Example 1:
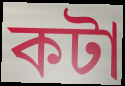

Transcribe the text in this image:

কটা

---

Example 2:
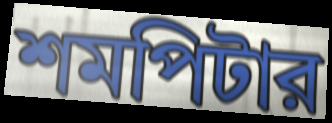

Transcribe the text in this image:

শমপিটার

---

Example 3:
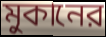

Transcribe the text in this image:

মুকানের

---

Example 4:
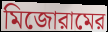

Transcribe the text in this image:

মিজোরামের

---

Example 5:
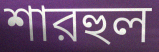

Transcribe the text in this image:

শারহুল